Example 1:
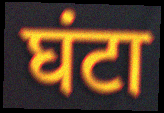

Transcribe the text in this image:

घंटा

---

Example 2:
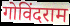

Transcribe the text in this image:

गोविंदराम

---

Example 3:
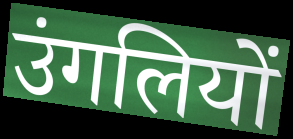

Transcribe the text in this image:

उंगलियों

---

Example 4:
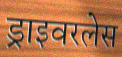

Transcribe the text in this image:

ड्राइवरलेस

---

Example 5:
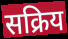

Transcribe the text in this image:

सक्रिय